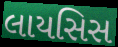
લાયસિસ